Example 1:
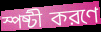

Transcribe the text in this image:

স্পষ্টীকরণে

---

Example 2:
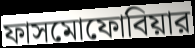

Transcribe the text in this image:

ফাসমোফোবিয়ার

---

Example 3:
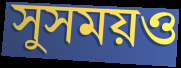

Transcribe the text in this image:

সুসময়ও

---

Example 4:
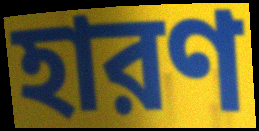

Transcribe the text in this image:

হারণ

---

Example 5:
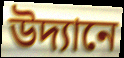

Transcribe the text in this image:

উদ্যানে